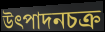
উৎপাদনচক্র